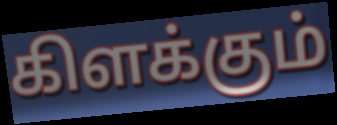
கிளக்கும்